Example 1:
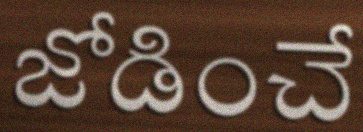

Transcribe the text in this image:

జోడించే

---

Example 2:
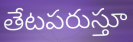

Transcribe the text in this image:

తేటపరుస్తూ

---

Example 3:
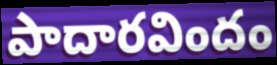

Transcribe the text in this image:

పాదారవిందం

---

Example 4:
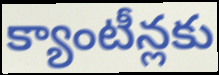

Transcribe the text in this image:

క్యాంటీన్లకు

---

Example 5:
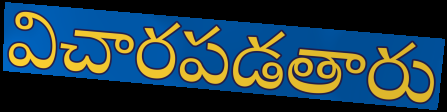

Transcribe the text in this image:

విచారపడతారు